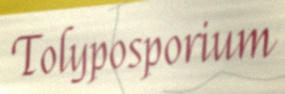
Tolyposporium